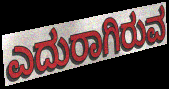
ಎದುರಾಗಿರುವ